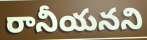
రానీయనని